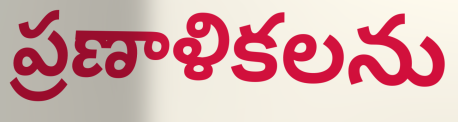
ప్రణాళికలను